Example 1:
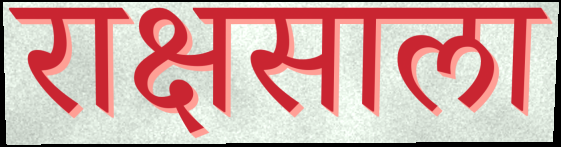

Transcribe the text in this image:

राक्षसाला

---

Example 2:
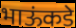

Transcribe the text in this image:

भाऊंकडे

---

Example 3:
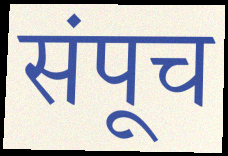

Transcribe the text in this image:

संपूच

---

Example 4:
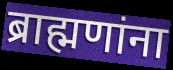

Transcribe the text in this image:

ब्राह्मणांना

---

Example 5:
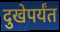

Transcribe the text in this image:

दुखेपर्यंत